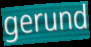
gerund